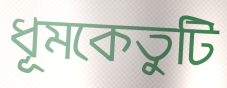
ধূমকেতুটি